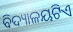
ବିଦ୍ୟାଳୟଟିଏ